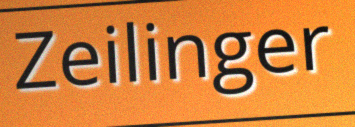
Zeilinger